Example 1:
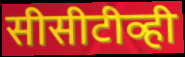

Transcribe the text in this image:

सीसीटीव्ही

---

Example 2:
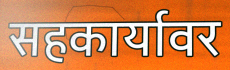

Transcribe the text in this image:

सहकार्यावर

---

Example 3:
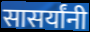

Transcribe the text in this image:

सासर्यांनी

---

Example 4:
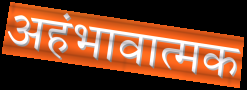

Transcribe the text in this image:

अहंभावात्मक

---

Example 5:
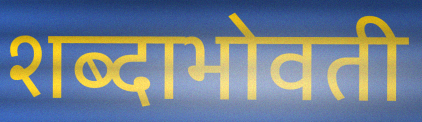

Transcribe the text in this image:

शब्दाभोवती